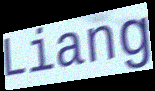
Liang